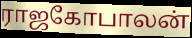
ராஜகோபாலன்